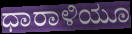
ಧಾರಾಳಿಯೂ